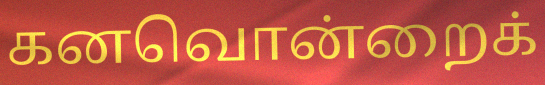
கனவொன்றைக்